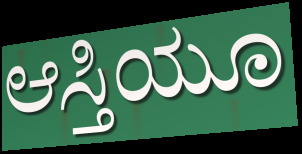
ಆಸ್ತಿಯೂ